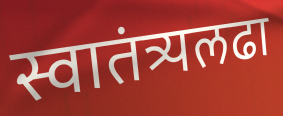
स्वातंत्र्यलढा